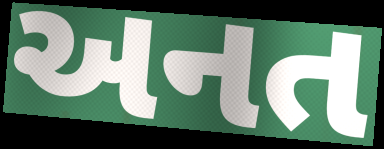
અનત